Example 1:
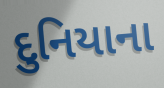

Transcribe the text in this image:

દુનિયાના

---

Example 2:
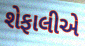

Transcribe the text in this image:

શેફાલીએ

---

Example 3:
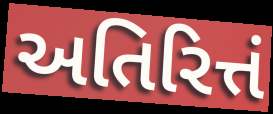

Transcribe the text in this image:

અતિરિત્તં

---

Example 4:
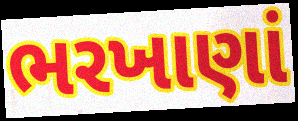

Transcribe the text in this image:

ભરખાણાં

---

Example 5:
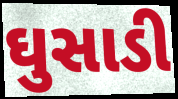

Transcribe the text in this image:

ઘુસાડી